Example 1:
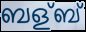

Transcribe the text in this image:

ബള്ബ്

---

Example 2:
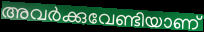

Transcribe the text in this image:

അവർക്കുവേണ്ടിയാണ്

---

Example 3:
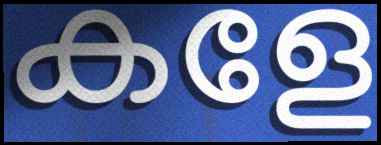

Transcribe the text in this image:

കളേ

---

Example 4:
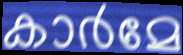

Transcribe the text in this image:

കാർമേ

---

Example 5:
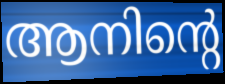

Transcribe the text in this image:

ആനിന്റെ